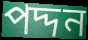
পদ্দন